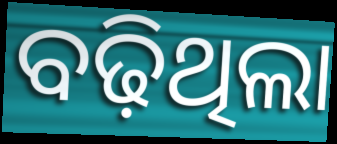
ବଢ଼ିଥିଲା